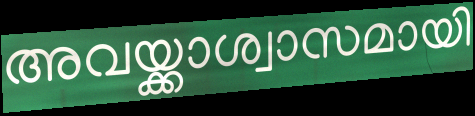
അവയ്ക്കാശ്വാസമായി